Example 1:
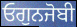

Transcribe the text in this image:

ਓਗੁਨਜੋਬੀ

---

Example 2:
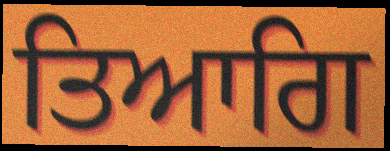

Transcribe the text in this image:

ਤਿਆਗਿ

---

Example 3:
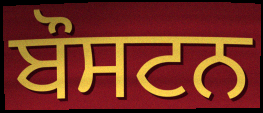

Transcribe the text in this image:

ਬੌਸਟਨ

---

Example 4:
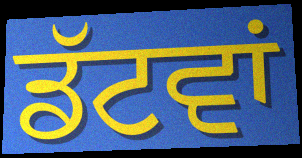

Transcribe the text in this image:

ਡੱਟਵਾਂ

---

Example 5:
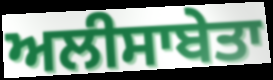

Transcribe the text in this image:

ਅਲੀਸਾਬੇਤਾ